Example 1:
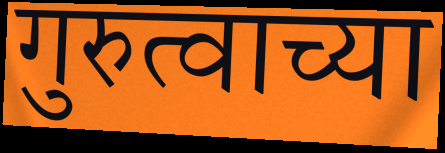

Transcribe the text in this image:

गुरुत्वाच्या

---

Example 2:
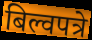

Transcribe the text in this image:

बिल्वपत्रे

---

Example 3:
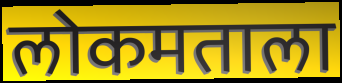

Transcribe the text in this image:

लोकमताला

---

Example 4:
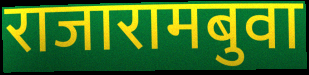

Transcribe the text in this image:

राजारामबुवा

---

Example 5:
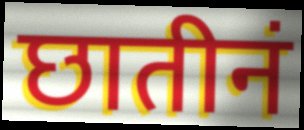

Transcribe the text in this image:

छातीनं